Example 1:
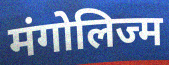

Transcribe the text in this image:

मंगोलिज्म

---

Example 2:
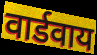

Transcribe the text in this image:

वार्डवाय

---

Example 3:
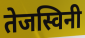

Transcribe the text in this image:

तेजस्विनी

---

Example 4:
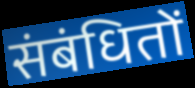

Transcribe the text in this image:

संबंधितों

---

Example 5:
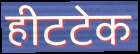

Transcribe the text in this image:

हीटटेक